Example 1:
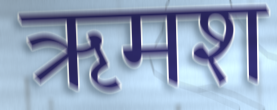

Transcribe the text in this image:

ऋमश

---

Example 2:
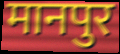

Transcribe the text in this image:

मानपुर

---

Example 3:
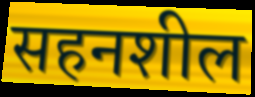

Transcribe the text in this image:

सहनशील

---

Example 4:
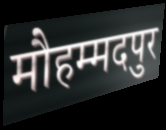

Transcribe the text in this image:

मौहम्मदपुर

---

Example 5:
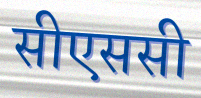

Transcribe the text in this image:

सीएससी